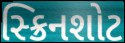
સ્ક્રિનશોટ